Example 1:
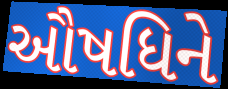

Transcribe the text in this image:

ઔષધિને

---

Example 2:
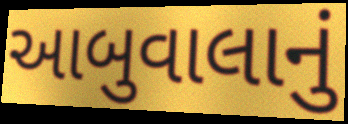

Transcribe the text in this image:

આબુવાલાનું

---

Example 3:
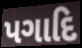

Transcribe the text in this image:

પગાદિ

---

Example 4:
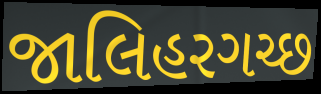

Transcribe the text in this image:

જાલિહરગચ્છ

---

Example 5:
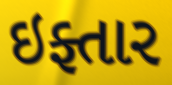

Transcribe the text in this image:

ઇફ્તાર